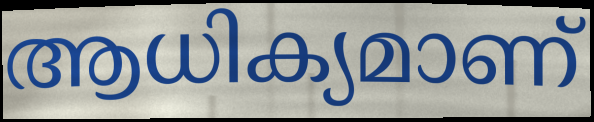
ആധിക്യമാണ്